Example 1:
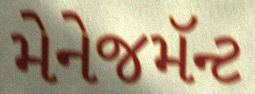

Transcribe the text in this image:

મેનેજમૅન્ટ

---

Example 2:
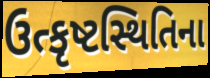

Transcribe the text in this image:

ઉત્કૃષ્ટસ્થિતિના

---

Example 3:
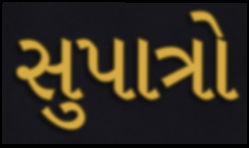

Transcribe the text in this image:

સુપાત્રો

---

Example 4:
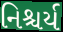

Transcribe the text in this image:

નિશ્ચર્ય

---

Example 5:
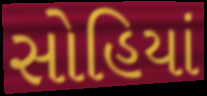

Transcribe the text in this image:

સોહિયાં